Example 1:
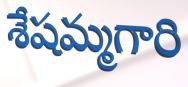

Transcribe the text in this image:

శేషమ్మగారి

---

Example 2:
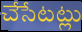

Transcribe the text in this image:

చేసేటట్లు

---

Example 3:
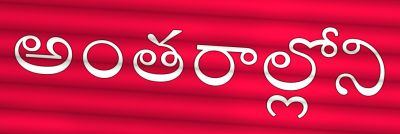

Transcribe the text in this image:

అంతరాల్లోని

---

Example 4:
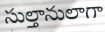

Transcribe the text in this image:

సుల్తానులాగా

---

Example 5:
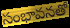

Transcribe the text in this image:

సంభావనతో